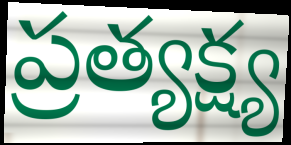
ప్రత్యక్ష్య